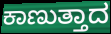
ಕಾಣುತ್ತಾದ